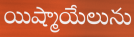
యిష్మాయేలును